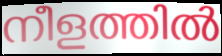
നീളത്തിൽ